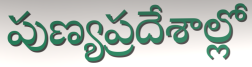
పుణ్యప్రదేశాల్లో